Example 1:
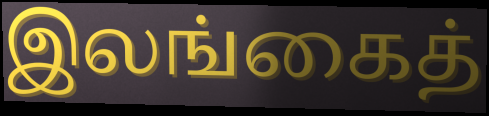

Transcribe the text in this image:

இலங்கைத்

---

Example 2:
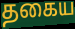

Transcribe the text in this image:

தகைய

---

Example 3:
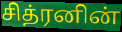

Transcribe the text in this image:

சித்ரனின்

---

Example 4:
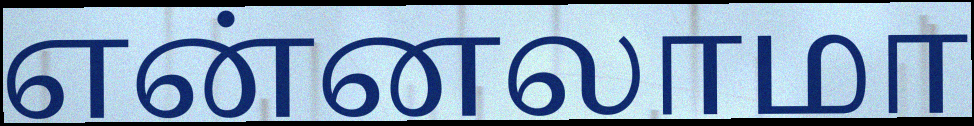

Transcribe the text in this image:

என்னலாமா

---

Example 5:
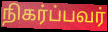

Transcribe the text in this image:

நிகர்ப்பவர்